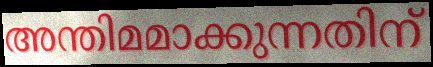
അന്തിമമാക്കുന്നതിന്